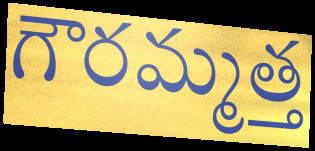
గౌరమ్మత్త